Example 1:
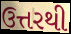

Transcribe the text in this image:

ઉત્તરથી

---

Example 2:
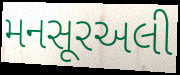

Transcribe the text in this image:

મનસૂરઅલી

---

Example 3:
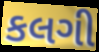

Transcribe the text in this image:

કલગી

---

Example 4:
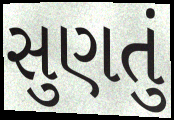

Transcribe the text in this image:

સુણતું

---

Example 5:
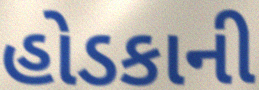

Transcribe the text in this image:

હોડકાની